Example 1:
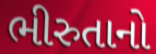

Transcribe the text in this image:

ભીરુતાનો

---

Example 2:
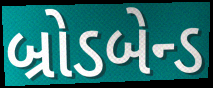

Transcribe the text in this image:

બ્રોડબેન્ડ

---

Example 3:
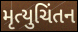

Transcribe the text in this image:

મૃત્યુચિંતન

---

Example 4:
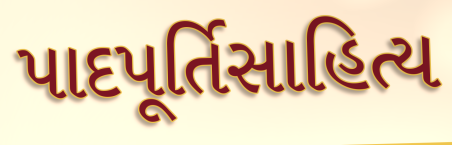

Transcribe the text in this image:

પાદપૂર્તિસાહિત્ય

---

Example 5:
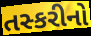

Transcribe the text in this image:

તસ્કરીનો